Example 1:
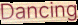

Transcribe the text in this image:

Dancing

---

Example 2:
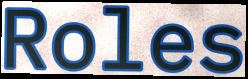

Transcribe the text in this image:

Roles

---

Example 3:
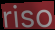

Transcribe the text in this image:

riso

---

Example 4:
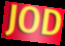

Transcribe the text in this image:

JOD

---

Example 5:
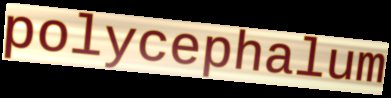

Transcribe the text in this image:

polycephalum